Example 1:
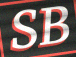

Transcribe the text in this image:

SB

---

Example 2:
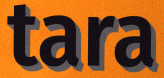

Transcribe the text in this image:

tara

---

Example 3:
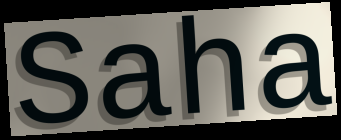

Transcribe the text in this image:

Saha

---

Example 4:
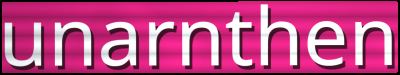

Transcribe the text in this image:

unarnthen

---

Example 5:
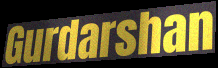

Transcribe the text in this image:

Gurdarshan